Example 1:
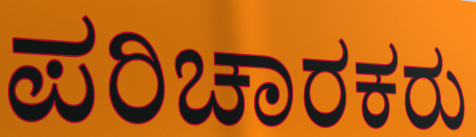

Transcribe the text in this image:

ಪರಿಚಾರಕರು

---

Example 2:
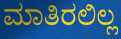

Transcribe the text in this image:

ಮಾತಿರಲಿಲ್ಲ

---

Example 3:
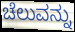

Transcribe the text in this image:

ಚೆಲುವನ್ನು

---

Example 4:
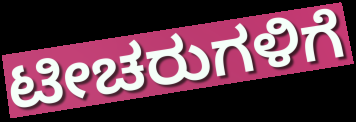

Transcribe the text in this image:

ಟೀಚರುಗಳಿಗೆ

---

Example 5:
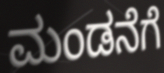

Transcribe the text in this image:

ಮಂಡನೆಗೆ